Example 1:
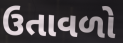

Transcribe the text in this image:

ઉતાવળો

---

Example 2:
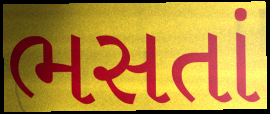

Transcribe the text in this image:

ભસતાં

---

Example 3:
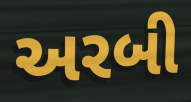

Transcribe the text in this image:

અરબી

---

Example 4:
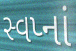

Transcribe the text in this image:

સ્વપ્નાં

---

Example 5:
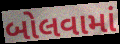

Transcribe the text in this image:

બોલવામાં